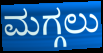
ಮಗ್ಗಲು